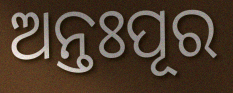
ଅନ୍ତଃପୂର